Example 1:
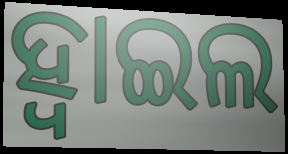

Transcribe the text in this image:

ହ୍ବାଇଲ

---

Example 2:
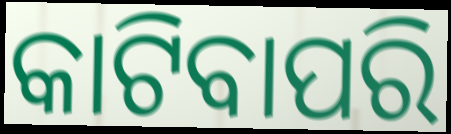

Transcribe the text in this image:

କାଟିବାପରି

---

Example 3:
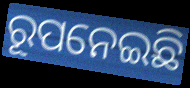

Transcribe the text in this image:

ରୂପନେଇଛି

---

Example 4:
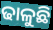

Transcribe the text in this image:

ଢାଳୁଛି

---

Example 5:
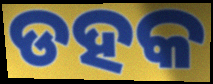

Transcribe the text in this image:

ଡହକ